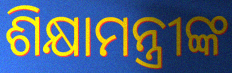
ଶିକ୍ଷାମନ୍ତ୍ରୀଙ୍କ